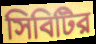
সিবিটির